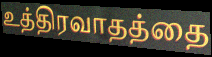
உத்திரவாதத்தை